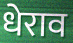
धेराव